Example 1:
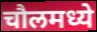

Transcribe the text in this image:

चौलमध्ये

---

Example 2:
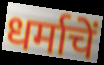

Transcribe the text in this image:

धर्माचें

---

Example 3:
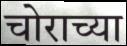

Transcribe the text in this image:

चोराच्या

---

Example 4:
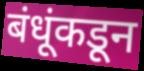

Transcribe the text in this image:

बंधूंकडून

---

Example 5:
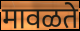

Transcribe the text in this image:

मावळते